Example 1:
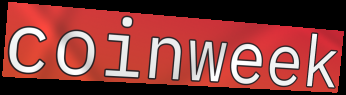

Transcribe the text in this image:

coinweek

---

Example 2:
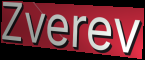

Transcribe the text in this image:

Zverev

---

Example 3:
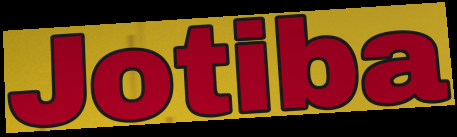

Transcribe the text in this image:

Jotiba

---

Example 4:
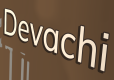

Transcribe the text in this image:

Devachi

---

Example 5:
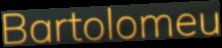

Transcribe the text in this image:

Bartolomeu